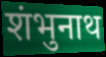
शंभुनाथ